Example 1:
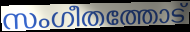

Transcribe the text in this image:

സംഗീതത്തോട്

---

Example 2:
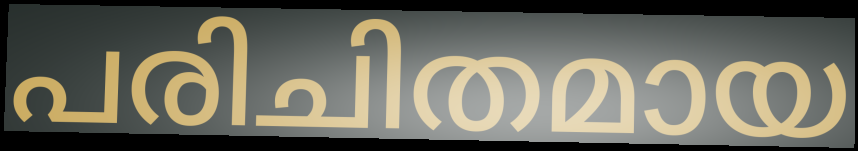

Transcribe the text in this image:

പരിചിതമായ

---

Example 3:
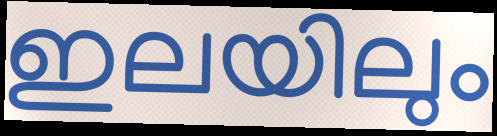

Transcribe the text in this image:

ഇലയിലും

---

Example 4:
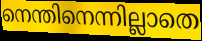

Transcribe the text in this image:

നെന്തിനെന്നില്ലാതെ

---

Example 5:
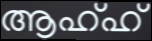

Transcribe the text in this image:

ആഹ്ഹ്